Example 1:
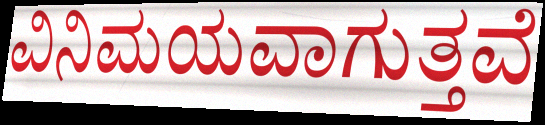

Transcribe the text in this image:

ವಿನಿಮಯವಾಗುತ್ತವೆ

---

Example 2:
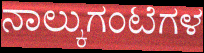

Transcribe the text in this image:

ನಾಲ್ಕುಗಂಟೆಗಳ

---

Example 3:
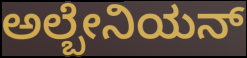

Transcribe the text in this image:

ಅಲ್ಬೇನಿಯನ್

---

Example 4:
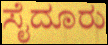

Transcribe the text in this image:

ಸೈದೂರು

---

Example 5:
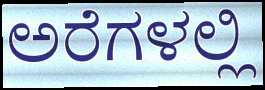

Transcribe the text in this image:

ಅರೆಗಳಲ್ಲಿ